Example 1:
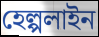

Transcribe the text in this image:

হেল্পলাইন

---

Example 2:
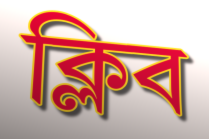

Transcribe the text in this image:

ক্লিব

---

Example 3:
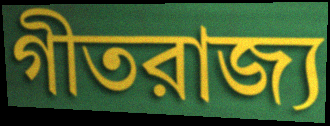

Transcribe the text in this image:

গীতরাজ্য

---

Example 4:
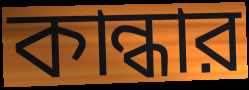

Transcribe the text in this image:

কান্ধার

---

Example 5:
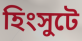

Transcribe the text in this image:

হিংসুটে